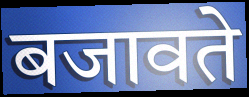
बजावते